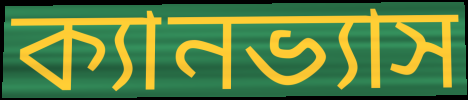
ক্যানভ্যাস